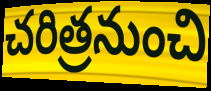
చరిత్రనుంచి